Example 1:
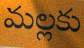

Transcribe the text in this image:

మల్లకు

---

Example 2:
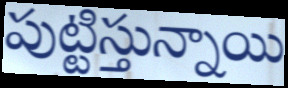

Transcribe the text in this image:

పుట్టిస్తున్నాయి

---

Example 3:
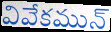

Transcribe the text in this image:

వివేకమున్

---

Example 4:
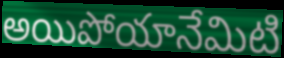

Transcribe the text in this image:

అయిపోయానేమిటి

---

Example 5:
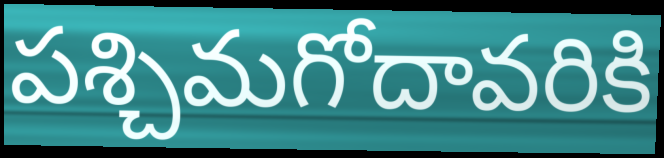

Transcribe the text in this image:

పశ్చిమగోదావరికి